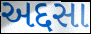
અદ્દસા